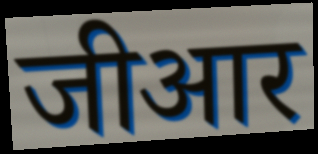
जीआर